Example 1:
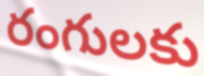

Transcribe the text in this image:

రంగులకు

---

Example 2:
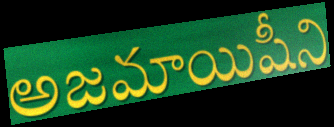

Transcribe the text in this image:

అజమాయిషీని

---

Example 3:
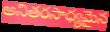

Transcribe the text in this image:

అనితరసాధ్యమైన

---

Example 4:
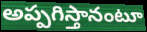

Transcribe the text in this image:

అప్పగిస్తానంటూ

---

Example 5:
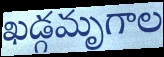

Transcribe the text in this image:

ఖడ్గమృగాల